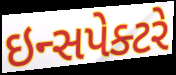
ઇન્સપેક્ટરે